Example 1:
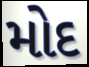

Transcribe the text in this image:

મોદ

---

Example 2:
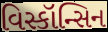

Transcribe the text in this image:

વિસ્કૉન્સિન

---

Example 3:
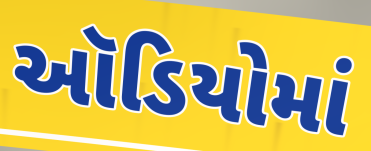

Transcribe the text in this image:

ઑડિયોમાં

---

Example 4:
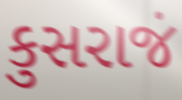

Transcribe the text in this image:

કુસરાજં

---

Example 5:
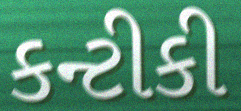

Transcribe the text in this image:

કન્ટીકી